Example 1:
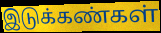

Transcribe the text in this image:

இடுக்கண்கள்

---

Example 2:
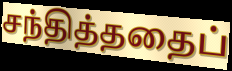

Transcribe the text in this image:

சந்தித்ததைப்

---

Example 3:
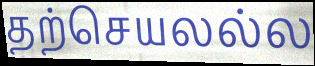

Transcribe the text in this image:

தற்செயலல்ல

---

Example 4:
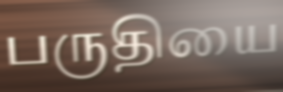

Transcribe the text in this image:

பருதியை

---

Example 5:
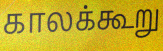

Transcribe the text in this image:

காலக்கூறு